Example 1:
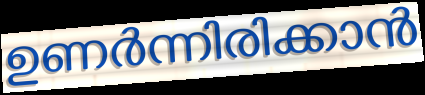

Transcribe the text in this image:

ഉണർന്നിരിക്കാൻ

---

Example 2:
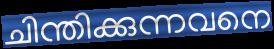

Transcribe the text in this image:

ചിന്തിക്കുന്നവനെ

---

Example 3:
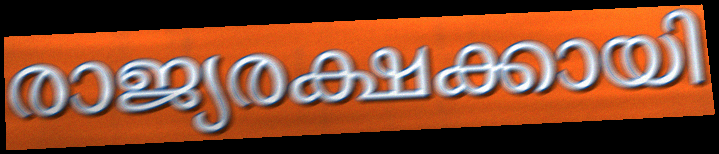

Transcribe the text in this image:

രാജ്യരക്ഷക്കായി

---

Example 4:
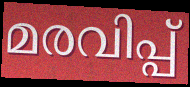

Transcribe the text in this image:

മരവിപ്പ്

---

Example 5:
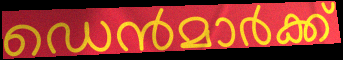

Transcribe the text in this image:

ഡെൻമാർക്ക്